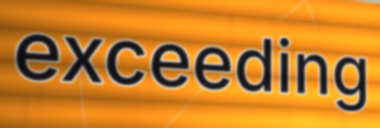
exceeding